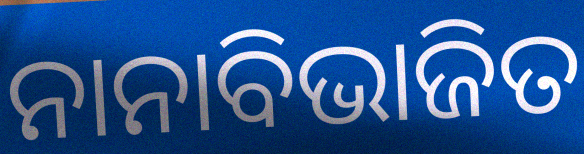
ନାନାବିଭାଜିତ